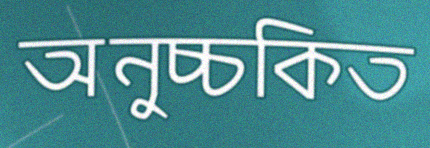
অনুচ্চকিত